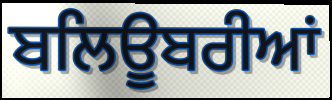
ਬਲਿਊਬਰੀਆਂ